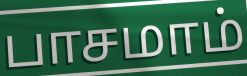
பாசமாம்